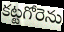
కట్టగోరెను